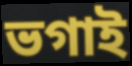
ভগাই